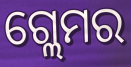
ଗ୍ଲେମର